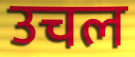
उचल